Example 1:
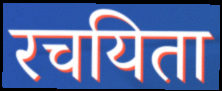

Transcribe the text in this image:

रचयिता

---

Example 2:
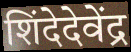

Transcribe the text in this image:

शिंदेदेवेंद्र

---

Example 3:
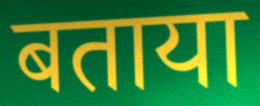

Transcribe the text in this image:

बताया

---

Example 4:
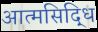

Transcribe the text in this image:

आत्मसिद्धि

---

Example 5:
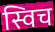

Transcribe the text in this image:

स्विच